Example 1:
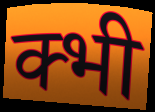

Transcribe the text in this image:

क्भी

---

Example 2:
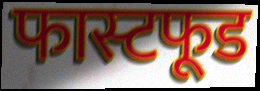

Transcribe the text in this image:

फास्‍टफूड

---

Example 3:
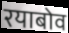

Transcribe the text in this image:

रयाबोव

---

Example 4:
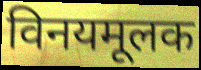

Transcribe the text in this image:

विनयमूलक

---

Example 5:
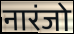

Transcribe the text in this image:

नारंजो